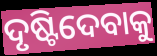
ଦୃଷ୍ଟିଦେବାକୁ